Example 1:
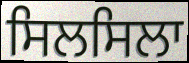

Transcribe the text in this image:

ਸਿਲਸਿਲਾ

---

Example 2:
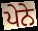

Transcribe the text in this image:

ਪੇਨੇ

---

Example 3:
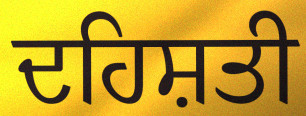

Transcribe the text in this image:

ਦਹਿਸ਼ਤੀ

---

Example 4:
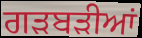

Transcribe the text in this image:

ਗੜਬੜੀਆਂ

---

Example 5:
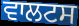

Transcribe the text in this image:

ਵਾਲਟਸ